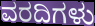
ವರದಿಗಳು